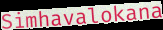
Simhavalokana